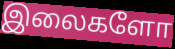
இலைகளோ